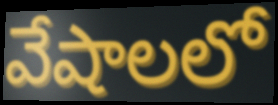
వేషాలలో